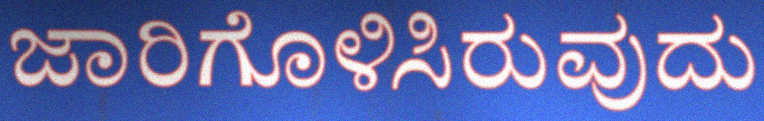
ಜಾರಿಗೊಳಿಸಿರುವುದು